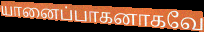
யானைப்பாகனாகவே